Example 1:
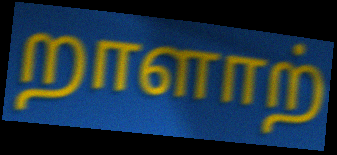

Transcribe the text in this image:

றாளாற்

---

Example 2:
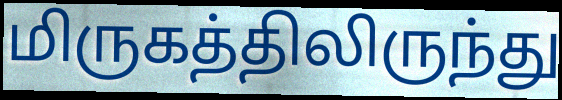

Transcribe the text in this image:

மிருகத்திலிருந்து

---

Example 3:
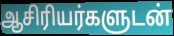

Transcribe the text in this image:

ஆசிரியர்களுடன்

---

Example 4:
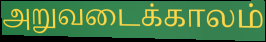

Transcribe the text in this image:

அறுவடைக்காலம்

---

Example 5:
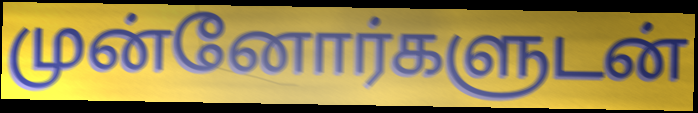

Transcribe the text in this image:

முன்னோர்களுடன்